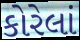
કોરેલાં